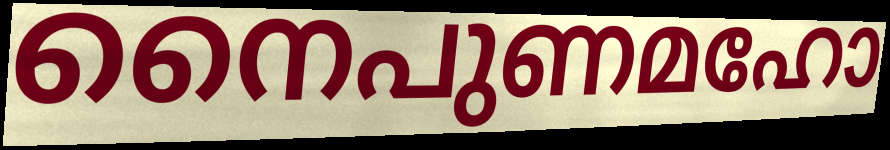
നൈപുണമഹോ